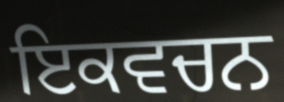
ਇਕਵਚਨ